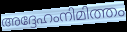
അദ്ദേഹംനിമിത്തം